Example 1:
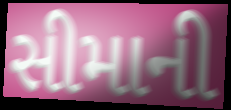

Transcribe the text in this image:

સીમાની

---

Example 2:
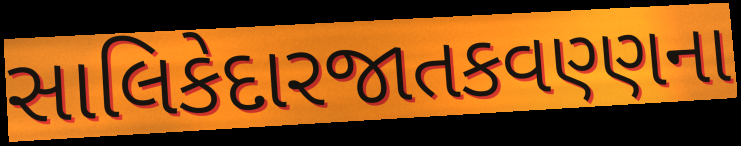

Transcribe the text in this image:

સાલિકેદારજાતકવણ્ણના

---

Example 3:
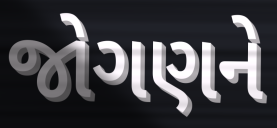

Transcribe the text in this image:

જોગણને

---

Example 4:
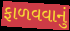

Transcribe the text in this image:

ફાળવવાનું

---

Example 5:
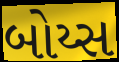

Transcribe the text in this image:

બોય્સ